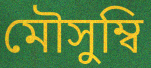
মৌসুম্বি